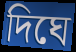
দিঘে